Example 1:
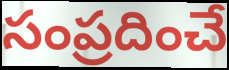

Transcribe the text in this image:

సంప్రదించే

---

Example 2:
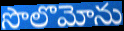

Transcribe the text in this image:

సొలొమోను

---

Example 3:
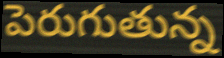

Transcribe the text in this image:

పెరుగుతున్న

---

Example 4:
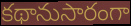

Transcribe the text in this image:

కథానుసారంగా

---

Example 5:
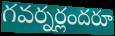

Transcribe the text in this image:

గవర్నర్లందరూ